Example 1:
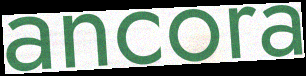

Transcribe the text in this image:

ancora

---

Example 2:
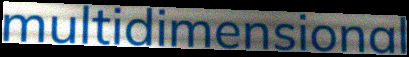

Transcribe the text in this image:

multidimensional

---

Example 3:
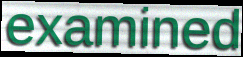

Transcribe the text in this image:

examined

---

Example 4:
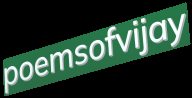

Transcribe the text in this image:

poemsofvijay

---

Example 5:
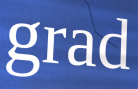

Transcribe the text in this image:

grad